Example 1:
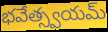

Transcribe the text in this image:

భవేత్స్వయమ్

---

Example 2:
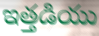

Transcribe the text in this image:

ఇత్తడియు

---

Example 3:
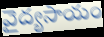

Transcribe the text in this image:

వైద్యసాయం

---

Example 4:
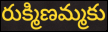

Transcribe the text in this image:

రుక్మిణమ్మకు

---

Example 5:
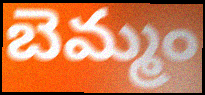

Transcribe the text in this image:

బెమ్మం